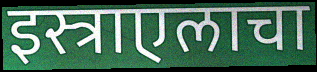
इस्त्राएलाचा